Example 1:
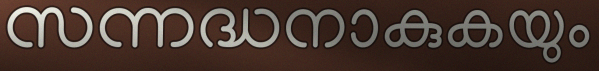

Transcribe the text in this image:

സന്നദ്ധനാകുകയും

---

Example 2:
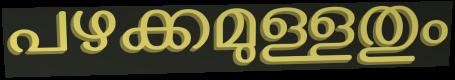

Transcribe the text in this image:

പഴക്കമുള്ളതും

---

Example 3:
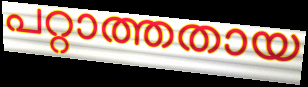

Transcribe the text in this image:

പറ്റാത്തതായ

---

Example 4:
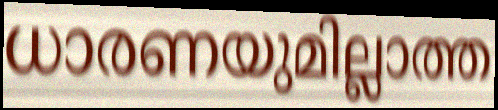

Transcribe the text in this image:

ധാരണയുമില്ലാത്ത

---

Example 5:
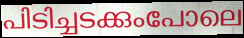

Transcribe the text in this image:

പിടിച്ചടക്കുംപോലെ